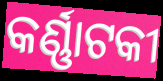
କର୍ଣ୍ଣାଟକୀ